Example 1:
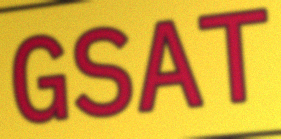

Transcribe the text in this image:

GSAT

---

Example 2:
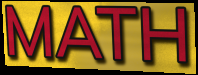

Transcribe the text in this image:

MATH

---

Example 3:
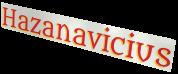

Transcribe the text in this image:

Hazanavicius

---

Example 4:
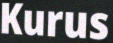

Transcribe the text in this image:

Kurus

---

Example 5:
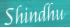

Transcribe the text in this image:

Shindhu